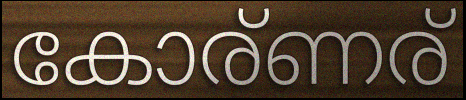
കോര്ണര്